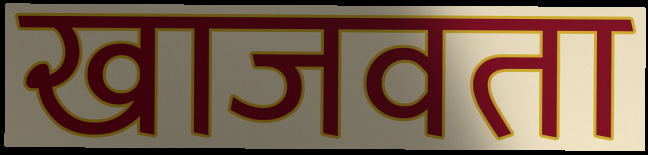
खाजवता